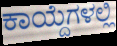
ಕಾಯ್ದೆಗಳಲ್ಲಿ